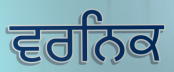
ਵਰਨਿਕ